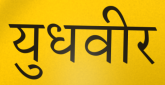
युधवीर